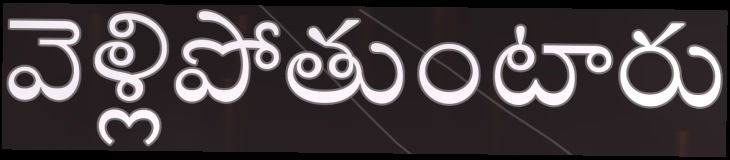
వెళ్లిపోతుంటారు